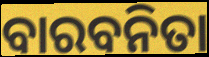
ବାରବନିତା